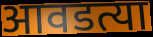
आवडत्या